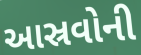
આસ્રવોની